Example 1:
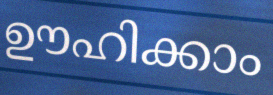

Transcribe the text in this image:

ഊഹിക്കാം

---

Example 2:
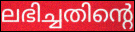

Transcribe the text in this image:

ലഭിച്ചതിന്റെ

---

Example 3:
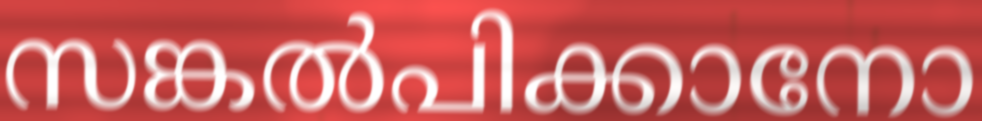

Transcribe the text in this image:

സങ്കൽപിക്കാനോ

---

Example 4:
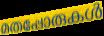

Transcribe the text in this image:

മതപ്പോരുകൾ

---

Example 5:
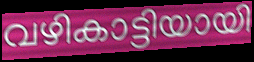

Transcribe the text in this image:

വഴികാട്ടിയായി